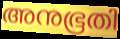
അനുഭൂതി